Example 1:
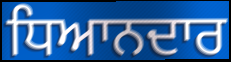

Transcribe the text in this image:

ਧਿਆਨਦਾਰ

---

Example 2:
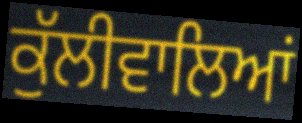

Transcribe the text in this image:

ਕੁੱਲੀਵਾਲਿਆਂ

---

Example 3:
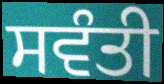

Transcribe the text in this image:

ਸਵੰਤੀ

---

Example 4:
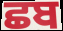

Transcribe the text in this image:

ਛਬ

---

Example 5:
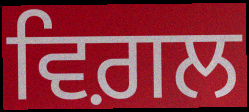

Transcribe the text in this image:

ਵਿਗ਼ਲ